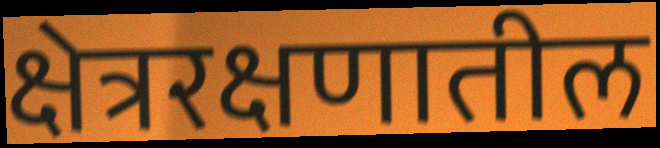
क्षेत्ररक्षणातील